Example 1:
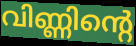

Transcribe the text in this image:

വിണ്ണിന്റെ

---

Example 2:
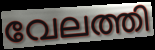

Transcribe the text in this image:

വേലത്തി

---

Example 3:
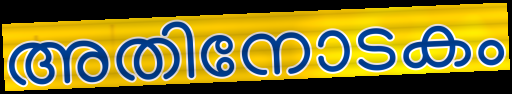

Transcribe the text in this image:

അതിനോടകം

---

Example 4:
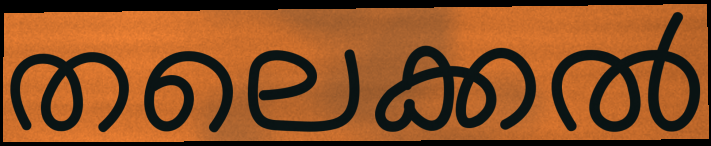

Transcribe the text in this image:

തലെക്കൽ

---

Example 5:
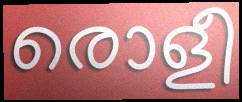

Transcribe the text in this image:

രൊളീ